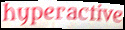
hyperactive